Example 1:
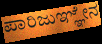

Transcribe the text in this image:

ಪಾರಿಜುಞ್ಞೇನ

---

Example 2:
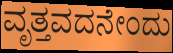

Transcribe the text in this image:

ವೃತ್ತವದನೇಂದು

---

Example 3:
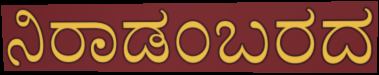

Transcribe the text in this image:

ನಿರಾಡಂಬರದ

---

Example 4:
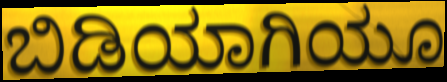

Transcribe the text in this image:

ಬಿಡಿಯಾಗಿಯೂ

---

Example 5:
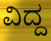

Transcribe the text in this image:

ವಿದ್ದ